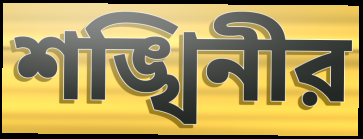
শঙ্খিনীর